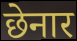
छेनार